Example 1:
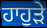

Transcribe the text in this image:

ਹਾਹੁੜੇ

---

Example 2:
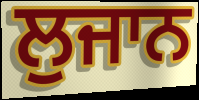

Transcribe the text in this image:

ਲੁਜਾਨ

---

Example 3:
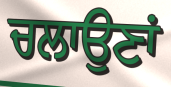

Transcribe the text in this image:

ਚਲਾਉਣਾਂ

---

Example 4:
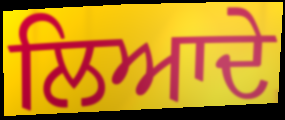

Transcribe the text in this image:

ਲਿਆਦੇ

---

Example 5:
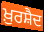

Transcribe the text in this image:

ਖ਼ੁਰਸ਼ੈਦ